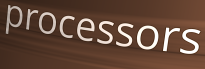
processors